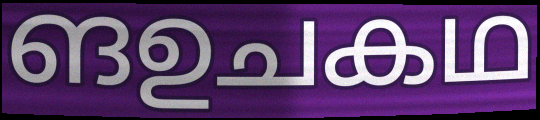
ങഉചകഥ